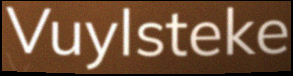
Vuylsteke